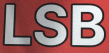
LSB